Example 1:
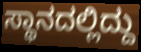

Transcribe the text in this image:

ಸ್ಥಾನದಲ್ಲಿದ್ದು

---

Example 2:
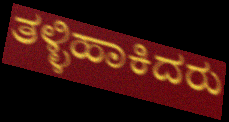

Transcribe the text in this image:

ತಳ್ಳಿಹಾಕಿದರು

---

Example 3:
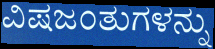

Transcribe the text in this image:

ವಿಷಜಂತುಗಳನ್ನು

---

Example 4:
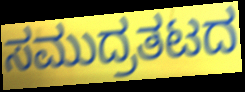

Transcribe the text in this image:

ಸಮುದ್ರತಟದ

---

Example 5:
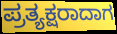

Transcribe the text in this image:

ಪ್ರತ್ಯಕ್ಷರಾದಾಗ